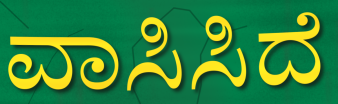
ವಾಸಿಸಿದೆ